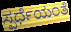
ಸ್ಪರ್ಧೆಯಂತೆ